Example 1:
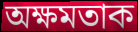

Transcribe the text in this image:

অক্ষমতাক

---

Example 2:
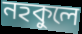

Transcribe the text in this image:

নহকুলে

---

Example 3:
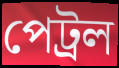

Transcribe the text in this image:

পেট্ৰল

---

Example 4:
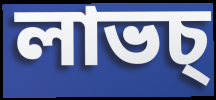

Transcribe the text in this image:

লাভচ্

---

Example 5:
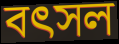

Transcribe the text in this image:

বৎসল